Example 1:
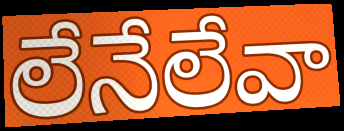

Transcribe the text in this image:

లేనేలేవా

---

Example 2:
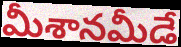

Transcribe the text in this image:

మీశానమీడే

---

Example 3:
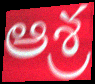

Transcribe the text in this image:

ఆశ్ర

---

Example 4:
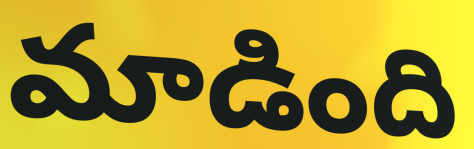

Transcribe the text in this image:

మాడింది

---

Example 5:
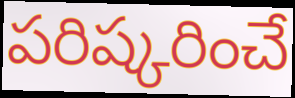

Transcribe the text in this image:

పరిష్కరించే